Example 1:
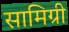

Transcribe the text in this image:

सामिग्री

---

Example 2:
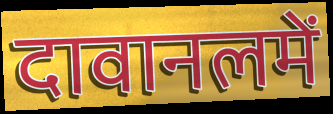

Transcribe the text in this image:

दावानलमें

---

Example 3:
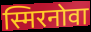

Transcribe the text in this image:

स्मिरनोवा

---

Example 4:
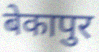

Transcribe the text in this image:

बेकापुर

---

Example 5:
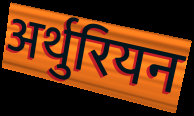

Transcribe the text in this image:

अर्थुरियन